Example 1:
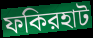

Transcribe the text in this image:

ফকিরহাট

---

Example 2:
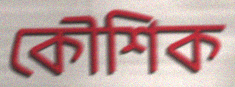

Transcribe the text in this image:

কৌশিক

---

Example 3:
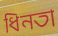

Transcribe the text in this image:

ধিনতা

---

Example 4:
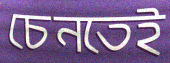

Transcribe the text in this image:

চেনতেই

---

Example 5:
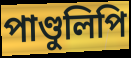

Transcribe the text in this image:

পাণ্ডুলিপি